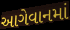
આગેવાનમાં